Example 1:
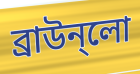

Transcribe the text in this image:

ব্রাউন্লো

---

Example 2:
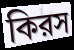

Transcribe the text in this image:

কিরস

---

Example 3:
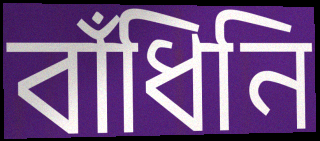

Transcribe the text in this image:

বাঁধিনি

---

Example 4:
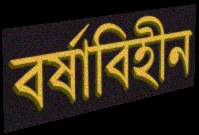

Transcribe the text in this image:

বর্ষাবিহীন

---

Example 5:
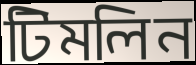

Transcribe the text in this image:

টিমলিন